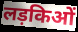
लड़किओं